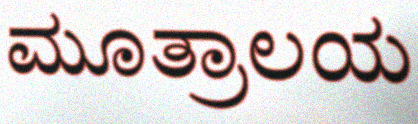
ಮೂತ್ರಾಲಯ